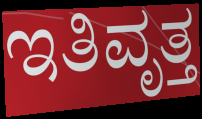
ಇತಿವೃತ್ತ